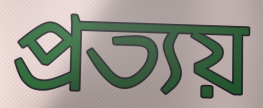
প্রত্যয়